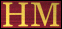
HM